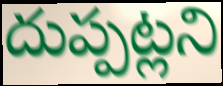
దుప్పట్లని